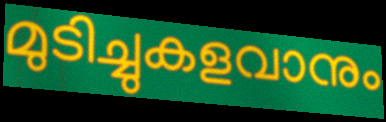
മുടിച്ചുകളവാനും